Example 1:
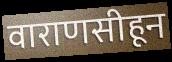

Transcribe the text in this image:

वाराणसीहून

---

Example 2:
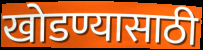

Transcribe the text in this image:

खोडण्यासाठी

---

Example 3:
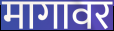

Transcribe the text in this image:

मागावर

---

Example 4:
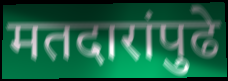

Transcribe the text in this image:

मतदारांपुढे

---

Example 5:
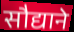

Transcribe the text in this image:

सौद्याने